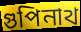
গুপিনাথ